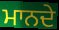
ਮਾਨਦੇ